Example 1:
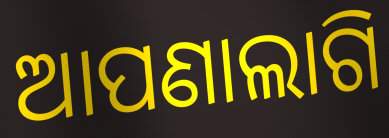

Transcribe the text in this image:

ଆପଣାଲାଗି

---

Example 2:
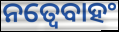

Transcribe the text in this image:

ନତ୍ୱେବାହଂ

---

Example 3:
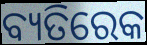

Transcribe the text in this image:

ବ୍ୟତିରେକ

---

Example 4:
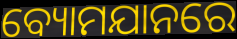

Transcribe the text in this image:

ବ୍ୟୋମଯାନରେ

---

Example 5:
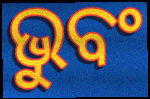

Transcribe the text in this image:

ଭୁବଂ